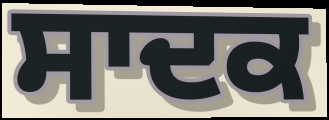
ਸਾਦਕ